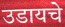
उडायचे